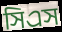
সিএস